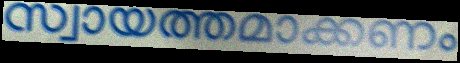
സ്വായത്തമാക്കണം